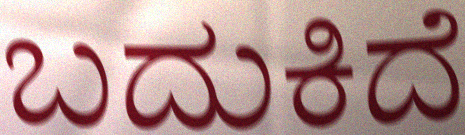
ಬದುಕಿದೆ